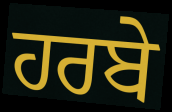
ਹਰਬੇ